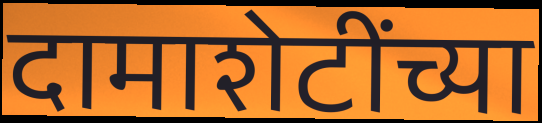
दामाशेटींच्या